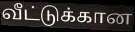
வீட்டுக்கான